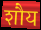
शौय